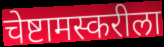
चेष्टामस्करीला